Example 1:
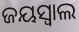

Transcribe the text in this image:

ଜୟସ୍ୱାଲ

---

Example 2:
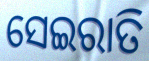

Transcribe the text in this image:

ସେଇରାତି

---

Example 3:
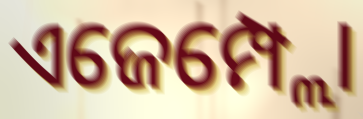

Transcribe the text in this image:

ଏଜେମ୍ପ୍ଲୋ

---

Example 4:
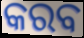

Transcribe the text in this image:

କରବ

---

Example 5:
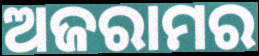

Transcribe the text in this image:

ଅଜରାମର